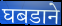
घबडाने